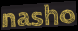
nasho